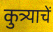
कुत्र्याचें